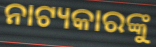
ନାଟ୍ୟକାରଙ୍କୁ